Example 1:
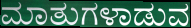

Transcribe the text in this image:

ಮಾತುಗಳಾಡುವ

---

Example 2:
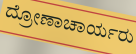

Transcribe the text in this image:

ದ್ರೋಣಾಚಾರ್ಯರು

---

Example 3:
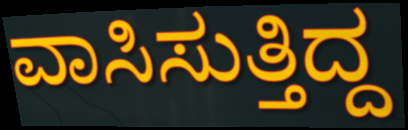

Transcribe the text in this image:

ವಾಸಿಸುತ್ತಿದ್ದ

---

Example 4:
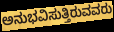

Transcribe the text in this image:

ಅನುಭವಿಸುತ್ತಿರುವವರು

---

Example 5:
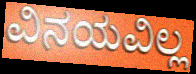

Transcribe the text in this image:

ವಿನಯವಿಲ್ಲ